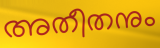
അതീതനും